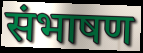
संभाषण